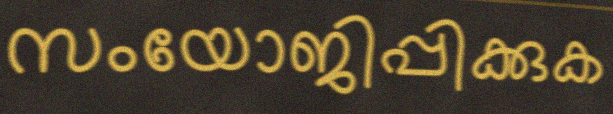
സംയോജിപ്പിക്കുക